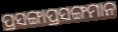
ପ୍ରସଙ୍ଗାପ୍ରସଙ୍ଗମାନ